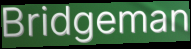
Bridgeman